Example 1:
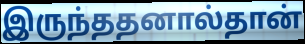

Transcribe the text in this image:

இருந்ததனால்தான்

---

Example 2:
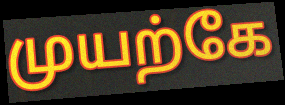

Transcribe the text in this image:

முயற்கே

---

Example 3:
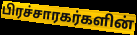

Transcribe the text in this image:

பிரச்சாரகர்களின்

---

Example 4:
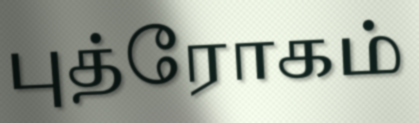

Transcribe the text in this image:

புத்ரோகம்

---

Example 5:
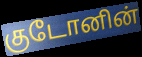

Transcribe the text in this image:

குடோனின்